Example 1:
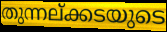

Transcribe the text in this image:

തുന്നല്ക്കടയുടെ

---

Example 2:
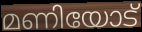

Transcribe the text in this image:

മണിയോട്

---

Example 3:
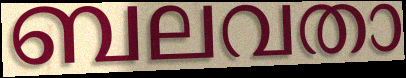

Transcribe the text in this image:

ബലവതാ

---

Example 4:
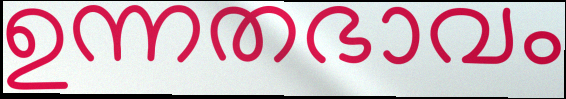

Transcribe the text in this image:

ഉന്നതഭാവം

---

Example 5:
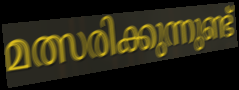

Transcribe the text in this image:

മത്സരിക്കുന്നുണ്ട്